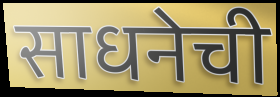
साधनेची